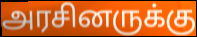
அரசினருக்கு